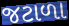
જટાળા